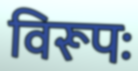
विरूपः